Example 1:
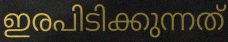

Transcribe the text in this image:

ഇരപിടിക്കുന്നത്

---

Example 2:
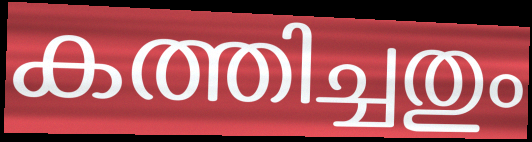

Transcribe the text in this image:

കത്തിച്ചതും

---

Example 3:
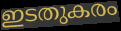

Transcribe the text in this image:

ഇടതുകരം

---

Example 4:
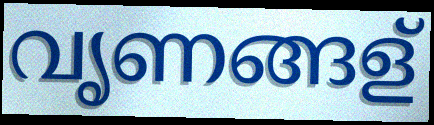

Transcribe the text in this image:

വൃണങ്ങള്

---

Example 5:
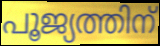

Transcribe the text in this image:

പൂജ്യത്തിന്